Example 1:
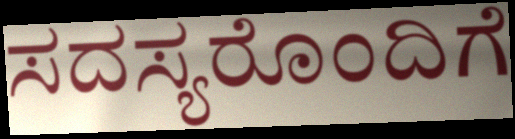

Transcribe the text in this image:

ಸದಸ್ಯರೊಂದಿಗೆ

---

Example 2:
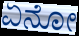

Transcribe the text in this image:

ಏನೋ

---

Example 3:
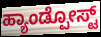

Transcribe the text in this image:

ಹ್ಯಾಂಡ್ಪೋಸ್ಟ್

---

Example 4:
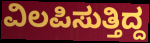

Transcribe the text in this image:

ವಿಲಪಿಸುತ್ತಿದ್ದ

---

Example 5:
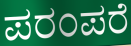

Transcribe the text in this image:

ಪರಂಪರೆ